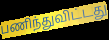
பணிந்துவிட்டது